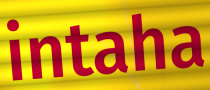
intaha